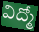
విద్మో